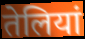
तेलियां